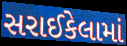
સરાઈકેલામાં